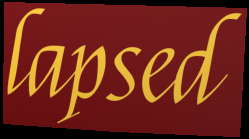
lapsed